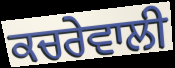
ਕਚਰੇਵਾਲੀ